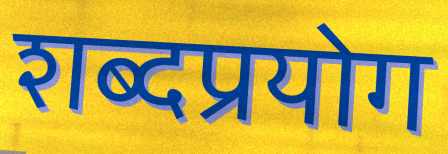
शब्दप्रयोग